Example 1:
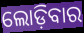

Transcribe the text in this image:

ଲୋଡ଼ିବାର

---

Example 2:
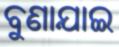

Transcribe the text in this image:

ବୁଣାଯାଇ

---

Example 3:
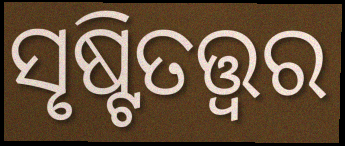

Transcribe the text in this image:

ସୃଷ୍ଟିତତ୍ତ୍ୱର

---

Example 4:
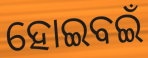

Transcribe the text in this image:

ହୋଇବଇଁ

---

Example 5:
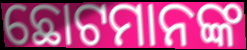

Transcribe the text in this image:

ଛୋଟମାନଙ୍କ